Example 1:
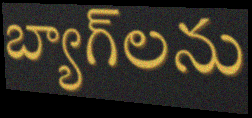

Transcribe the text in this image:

బ్యాగ్‌లను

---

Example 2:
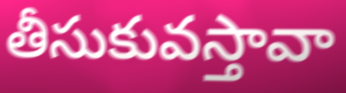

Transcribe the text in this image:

తీసుకువస్తావా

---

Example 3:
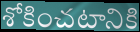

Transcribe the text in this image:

శోకించటానికి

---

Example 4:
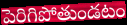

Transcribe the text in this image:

పెరిగిపోతుండటం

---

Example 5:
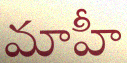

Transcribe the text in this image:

మాహీ